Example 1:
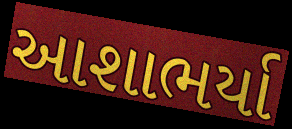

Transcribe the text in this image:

આશાભર્યા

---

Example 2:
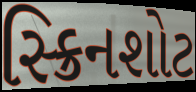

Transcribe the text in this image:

સ્ક્રિનશોટ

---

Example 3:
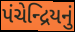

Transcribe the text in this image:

પંચેન્દ્રિયનું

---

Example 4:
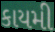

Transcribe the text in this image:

કાયમી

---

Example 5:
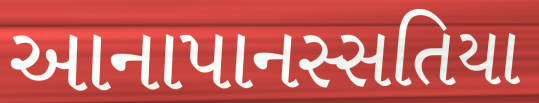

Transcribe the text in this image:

આનાપાનસ્સતિયા